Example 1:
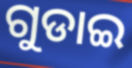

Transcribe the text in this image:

ଗୁଡାଇ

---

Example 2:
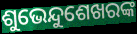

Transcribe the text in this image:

ଶୁଭେନ୍ଦୁଶେଖରଙ୍କ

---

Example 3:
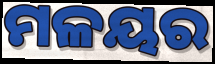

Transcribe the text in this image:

ମଳୟର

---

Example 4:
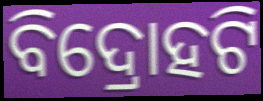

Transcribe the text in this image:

ବିଦ୍ରୋହଟି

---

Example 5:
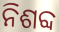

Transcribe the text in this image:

ନିଶବ୍ଦ